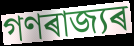
গণৰাজ্যৰ